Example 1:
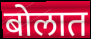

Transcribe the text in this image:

बोलात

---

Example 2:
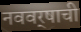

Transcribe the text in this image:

नववर्षाची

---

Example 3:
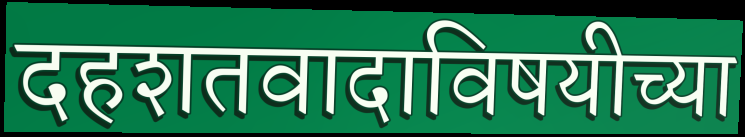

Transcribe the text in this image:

दहशतवादाविषयीच्या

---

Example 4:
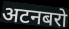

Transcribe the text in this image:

अटनबरो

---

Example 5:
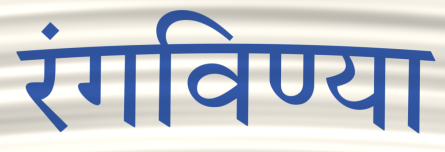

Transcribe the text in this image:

रंगविण्या